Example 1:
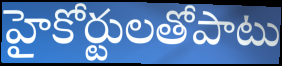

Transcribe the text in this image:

హైకోర్టులతోపాటు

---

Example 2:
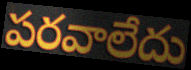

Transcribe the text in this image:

పరవాలేదు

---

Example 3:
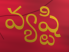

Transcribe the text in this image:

వ్యష్టి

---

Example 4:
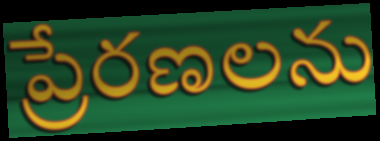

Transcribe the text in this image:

ప్రేరణలను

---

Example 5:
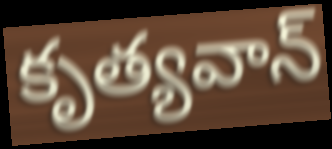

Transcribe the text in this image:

కృత్యవాన్